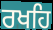
ਰਖਹਿ